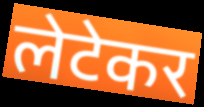
लेटेकर